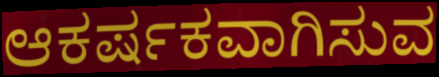
ಆಕರ್ಷಕವಾಗಿಸುವ